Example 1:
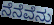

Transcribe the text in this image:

ನೆನೆವೆನು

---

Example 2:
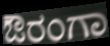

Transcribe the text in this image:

ಔರಂಗಾ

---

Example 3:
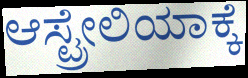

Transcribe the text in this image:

ಆಸ್ಟ್ರೇಲಿಯಾಕ್ಕೆ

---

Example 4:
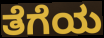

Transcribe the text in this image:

ತೆಗೆಯ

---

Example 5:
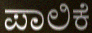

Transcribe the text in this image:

ಪಾಲಿಕೆ